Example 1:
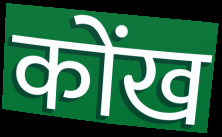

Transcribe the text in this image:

कोंख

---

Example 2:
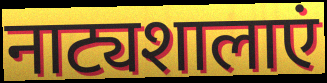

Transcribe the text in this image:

नाट्यशालाएं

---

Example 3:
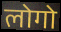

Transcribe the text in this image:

लोगो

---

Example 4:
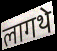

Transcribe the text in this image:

लागथे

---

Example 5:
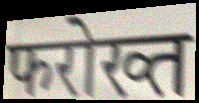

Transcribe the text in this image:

फरोख्त